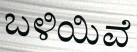
ಬಳಿಯಿವೆ